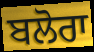
ਬਲੋਰਾ